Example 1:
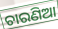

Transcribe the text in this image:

ଚାରଣିଆ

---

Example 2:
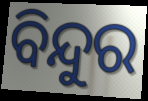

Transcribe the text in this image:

ବିନ୍ଦୁର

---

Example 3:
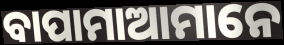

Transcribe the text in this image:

ବାପାମାଆମାନେ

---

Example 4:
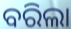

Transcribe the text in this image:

ବରିଲା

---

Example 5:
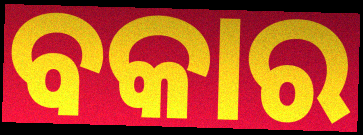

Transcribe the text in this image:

ବକାର